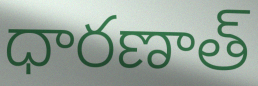
ధారణాత్